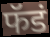
फॅडं